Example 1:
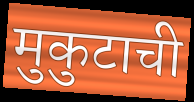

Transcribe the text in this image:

मुकुटाची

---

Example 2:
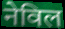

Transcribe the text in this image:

नेविल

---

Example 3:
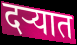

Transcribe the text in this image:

दऱ्यात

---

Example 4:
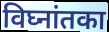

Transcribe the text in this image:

विघ्नांतका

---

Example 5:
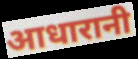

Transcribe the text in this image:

आधारानी